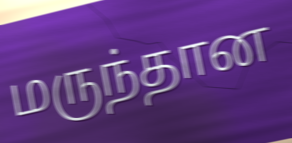
மருந்தான